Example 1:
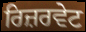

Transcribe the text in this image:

ਰਿਜ਼ਰਵੇਟ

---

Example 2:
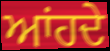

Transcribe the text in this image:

ਆਂਹਦੇ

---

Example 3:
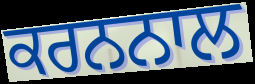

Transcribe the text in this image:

ਕਰਨਨਾਲ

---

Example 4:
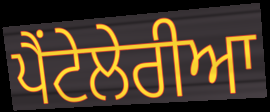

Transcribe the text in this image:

ਪੈਂਟੇਲੇਰੀਆ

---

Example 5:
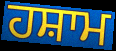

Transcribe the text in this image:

ਹਸ਼ਾਮ